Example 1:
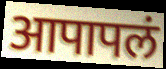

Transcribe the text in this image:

आपापलं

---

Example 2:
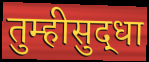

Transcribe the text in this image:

तुम्हीसुद्धा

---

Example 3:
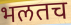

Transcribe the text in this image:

भलतच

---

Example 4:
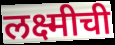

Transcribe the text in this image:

लक्ष्मीची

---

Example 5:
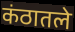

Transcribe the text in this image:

कंठातले